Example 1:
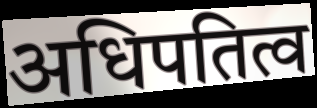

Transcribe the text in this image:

अधिपतित्व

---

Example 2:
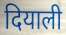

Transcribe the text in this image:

दियाली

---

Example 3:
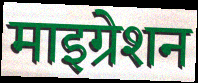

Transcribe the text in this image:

माइग्रेशन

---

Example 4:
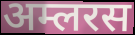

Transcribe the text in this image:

अम्लरस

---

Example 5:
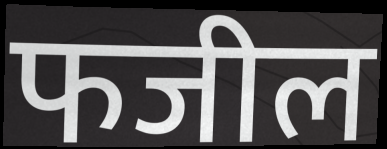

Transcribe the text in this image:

फजील